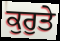
ਕੁਰੁਤੇ